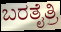
ಬರತೈತ್ರಿ